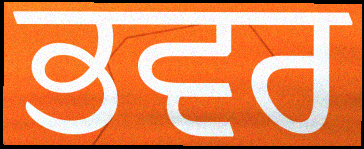
ਭਵਰ